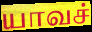
யாவச்